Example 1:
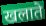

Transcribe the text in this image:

खलाते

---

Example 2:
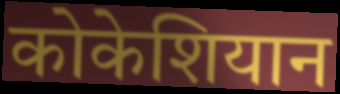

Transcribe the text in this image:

कोकेशियान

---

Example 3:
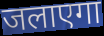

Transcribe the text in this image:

जलाएगा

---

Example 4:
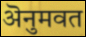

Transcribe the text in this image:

ऄनुमवत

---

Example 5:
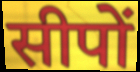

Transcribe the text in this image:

सीपों